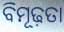
ବିମୂଢ଼ତା